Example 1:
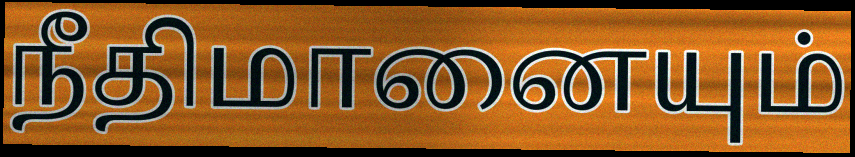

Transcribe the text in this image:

நீதிமானையும்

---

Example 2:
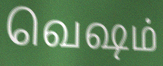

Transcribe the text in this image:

வெஷம்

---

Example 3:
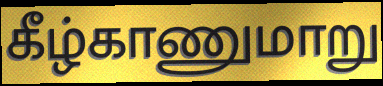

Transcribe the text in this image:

கீழ்காணுமாறு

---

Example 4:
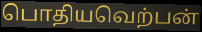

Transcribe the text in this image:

பொதியவெற்பன்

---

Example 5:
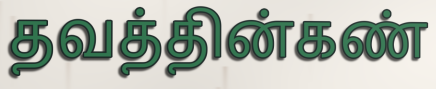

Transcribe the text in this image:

தவத்தின்கண்